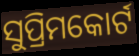
ସୁପ୍ରିମକୋର୍ଟ